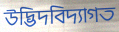
উদ্ভিদবিদ্যাগত